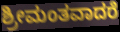
ಶ್ರೀಮಂತವಾದರೆ